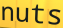
nuts